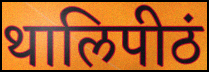
थालिपीठं